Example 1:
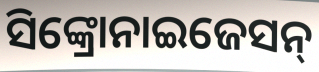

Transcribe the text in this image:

ସିଙ୍କ୍ରୋନାଇଜେସନ୍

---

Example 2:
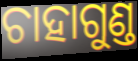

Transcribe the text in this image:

ଚାହାଗୁଣ୍ଡ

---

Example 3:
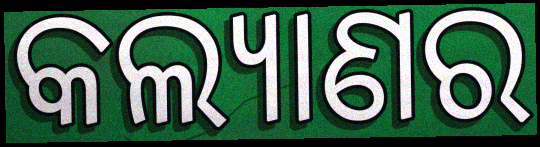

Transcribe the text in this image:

କଲ୍ୟାଣର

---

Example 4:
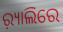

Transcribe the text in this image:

ର଼୍ୟାଲିରେ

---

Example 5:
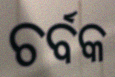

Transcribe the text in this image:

ଚର୍ବକ